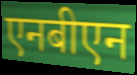
एनबीएन